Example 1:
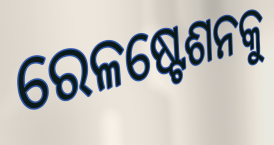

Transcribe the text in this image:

ରେଳଷ୍ଟେଶନକୁ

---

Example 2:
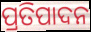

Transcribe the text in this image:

ପ୍ରତିପାଦନ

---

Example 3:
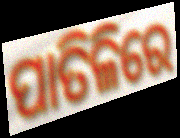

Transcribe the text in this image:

ପାତିଳିରେ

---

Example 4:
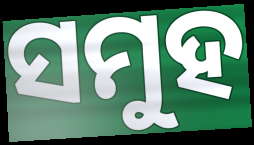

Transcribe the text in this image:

ସମୁହ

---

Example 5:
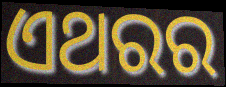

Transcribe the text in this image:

ଏଥରର